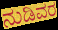
ನುಡಿವರ